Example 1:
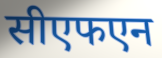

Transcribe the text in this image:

सीएफएन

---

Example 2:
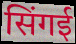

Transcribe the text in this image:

सिंगई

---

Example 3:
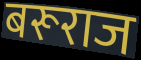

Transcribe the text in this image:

बरूराज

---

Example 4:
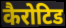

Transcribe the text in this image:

कैरोटिड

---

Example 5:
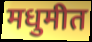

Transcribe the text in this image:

मधुमीत